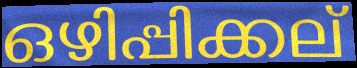
ഒഴിപ്പിക്കല്